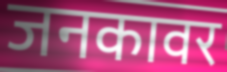
जनकावर